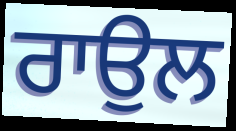
ਰਾਉਲ